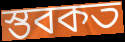
স্তবকত